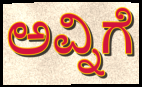
ಅವ್ನಿಗೆ